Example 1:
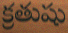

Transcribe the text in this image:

క్రతుషు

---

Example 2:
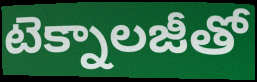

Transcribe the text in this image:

టెక్నాలజీతో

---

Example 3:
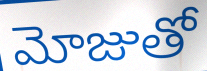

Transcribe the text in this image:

మోజుతో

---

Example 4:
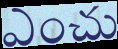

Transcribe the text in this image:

ఎంచు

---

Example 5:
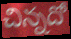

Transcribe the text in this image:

చిన్నదో